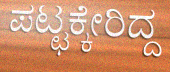
ಪಟ್ಟಕ್ಕೇರಿದ್ದ